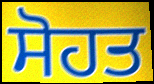
ਸੋਹਤ